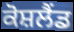
ਕੋਸ਼ਲੈਂਡ